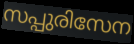
സപ്പുരിസേന